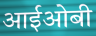
आईओबी